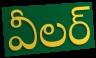
వీలర్